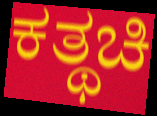
ಕತ್ಥಚಿ